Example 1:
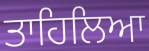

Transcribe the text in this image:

ਤਾਹਿਲਿਆ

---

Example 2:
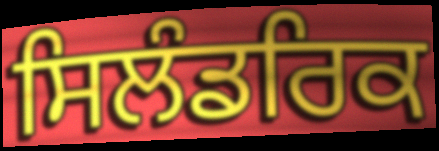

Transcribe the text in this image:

ਸਿਲੰਡਰਿਕ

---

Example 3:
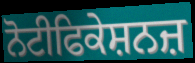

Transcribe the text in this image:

ਨੋਟੀਫਿਕੇਸ਼ਨਜ਼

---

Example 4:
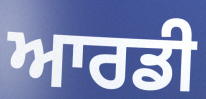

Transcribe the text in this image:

ਆਰਡੀ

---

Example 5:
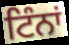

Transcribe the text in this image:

ਟਿੰਨਾਂ